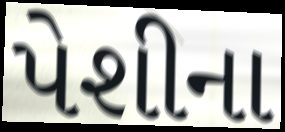
પેશીના